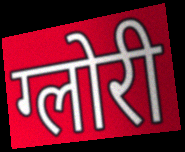
ग्लोरी